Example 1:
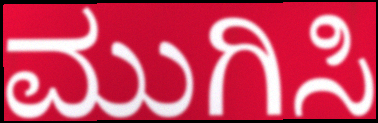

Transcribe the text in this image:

ಮುಗಿಸಿ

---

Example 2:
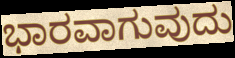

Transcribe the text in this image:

ಭಾರವಾಗುವುದು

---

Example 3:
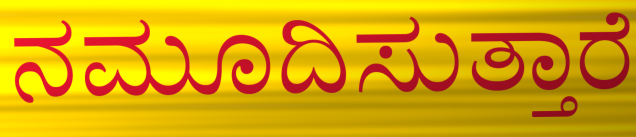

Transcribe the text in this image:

ನಮೂದಿಸುತ್ತಾರೆ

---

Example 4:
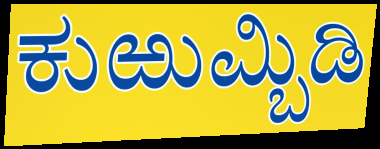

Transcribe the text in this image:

ಕುಱುಮ್ಬಿಡಿ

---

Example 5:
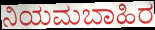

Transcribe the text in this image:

ನಿಯಮಬಾಹಿರ